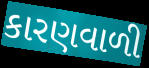
કારણવાળી